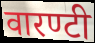
वारण्टी